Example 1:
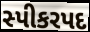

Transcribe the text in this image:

સ્પીકરપદ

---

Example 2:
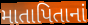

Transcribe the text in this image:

માતાપિતાનાં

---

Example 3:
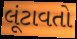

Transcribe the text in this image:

લૂંટાવતો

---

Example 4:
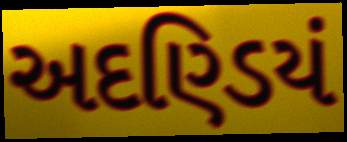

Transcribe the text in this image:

અદણ્ડિયં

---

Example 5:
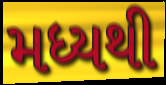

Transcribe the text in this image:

મધ્યથી